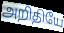
அறிதியே